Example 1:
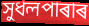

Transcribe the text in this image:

সুধলপাৰাৰ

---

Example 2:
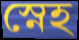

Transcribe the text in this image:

স্নেহ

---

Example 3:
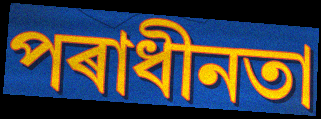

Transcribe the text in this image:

পৰাধীনতা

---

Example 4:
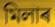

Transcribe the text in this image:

মিলাৰ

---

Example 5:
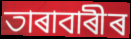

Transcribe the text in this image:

তাৰাবাৰীৰ